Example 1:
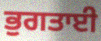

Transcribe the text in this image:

ਭੁਗਤਾਈ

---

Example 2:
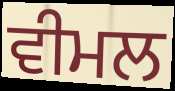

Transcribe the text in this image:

ਵੀਮਲ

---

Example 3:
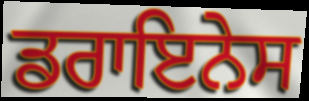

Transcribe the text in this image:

ਡਰਾਇਨੇਸ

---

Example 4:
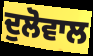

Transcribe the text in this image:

ਦੁਲੋਵਾਲ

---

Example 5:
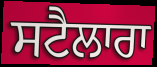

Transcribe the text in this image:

ਸਟੈਲਾਰਾ